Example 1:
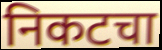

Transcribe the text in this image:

निकटचा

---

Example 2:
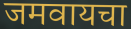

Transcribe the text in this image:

जमवायचा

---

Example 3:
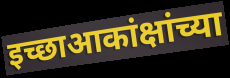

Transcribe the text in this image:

इच्छाआकांक्षांच्या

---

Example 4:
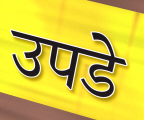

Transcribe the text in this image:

उपडे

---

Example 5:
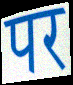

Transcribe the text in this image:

पर